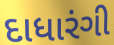
દાધારંગી